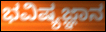
ಭವಿಷ್ಯಜ್ಞಾನ